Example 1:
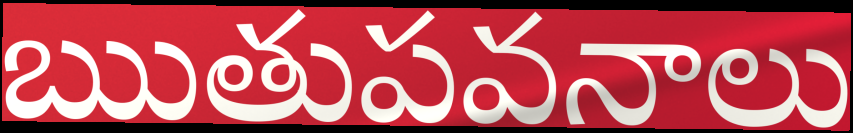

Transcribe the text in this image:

ఋతుపవనాలు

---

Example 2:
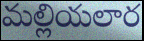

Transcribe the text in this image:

మల్లియలార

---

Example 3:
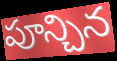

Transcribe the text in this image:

పూన్చిన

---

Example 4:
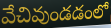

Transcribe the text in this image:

వేచివుండడంలో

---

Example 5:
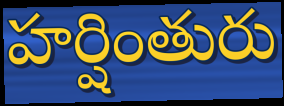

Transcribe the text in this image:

హర్షింతురు